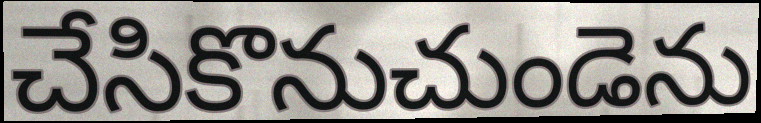
చేసికొనుచుండెను